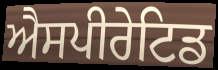
ਐਸਪੀਰੇਟਿਡ